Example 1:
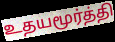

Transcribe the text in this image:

உதயமூர்த்தி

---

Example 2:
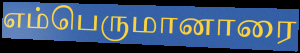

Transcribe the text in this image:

எம்பெருமானாரை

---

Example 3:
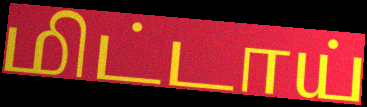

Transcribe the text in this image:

மிட்டாய்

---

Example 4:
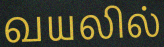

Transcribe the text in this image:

வயலில்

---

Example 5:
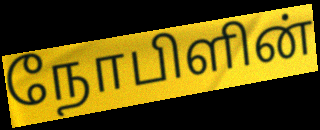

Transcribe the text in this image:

நோபிளின்